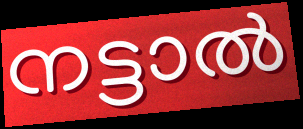
നട്ടാൽ